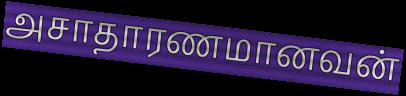
அசாதாரணமானவன்